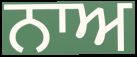
ਨਾਅ